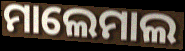
ମାଲେମାଲ